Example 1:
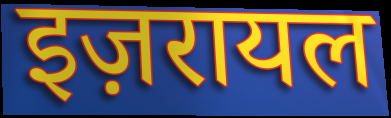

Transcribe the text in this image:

इज़रायल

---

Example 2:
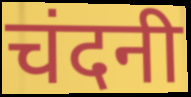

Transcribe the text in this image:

चंदनी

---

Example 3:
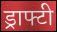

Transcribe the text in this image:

ड्राफ्टी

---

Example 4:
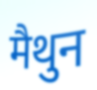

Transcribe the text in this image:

मैथुन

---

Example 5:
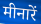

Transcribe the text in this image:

मीनारें